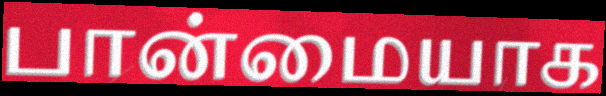
பான்மையாக